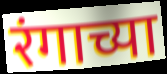
रंगाच्या